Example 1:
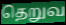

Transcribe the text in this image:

தெறுவ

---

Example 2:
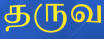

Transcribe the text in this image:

தருவ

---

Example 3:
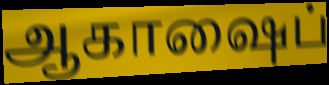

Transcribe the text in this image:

ஆகாஷைப்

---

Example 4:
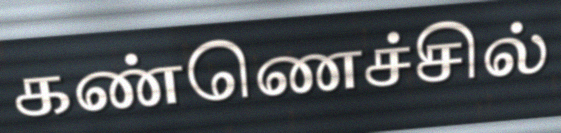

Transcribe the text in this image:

கண்ணெச்சில்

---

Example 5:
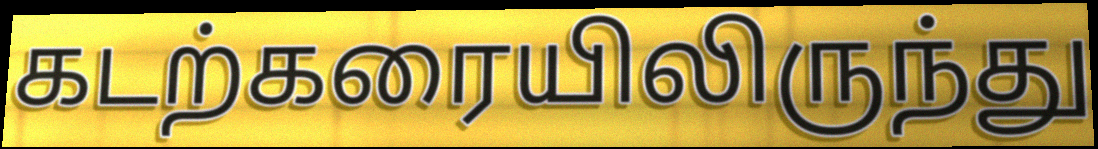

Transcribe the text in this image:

கடற்கரையிலிருந்து